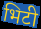
भिटी